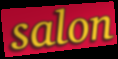
salon